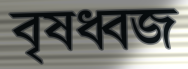
বৃষধ্বজ